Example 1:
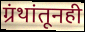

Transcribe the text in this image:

ग्रंथांतूनही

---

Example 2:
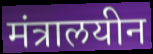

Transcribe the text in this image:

मंत्रालयीन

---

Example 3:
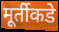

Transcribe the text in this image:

मूर्तीकडे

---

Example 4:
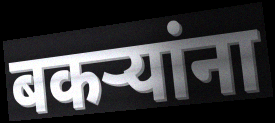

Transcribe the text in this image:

बकर्‍यांना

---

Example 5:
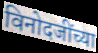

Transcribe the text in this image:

विनोदजींच्या